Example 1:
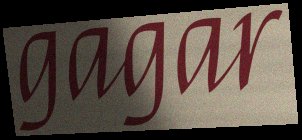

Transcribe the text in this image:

gagar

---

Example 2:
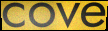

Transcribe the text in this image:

cove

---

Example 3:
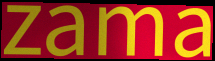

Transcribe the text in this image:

zama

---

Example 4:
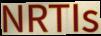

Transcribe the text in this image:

NRTIs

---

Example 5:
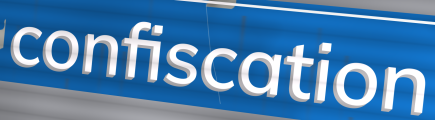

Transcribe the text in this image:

confiscation